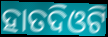
ହାତଦିଓଟି